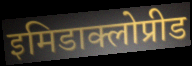
इमिडाक्लोप्रीड